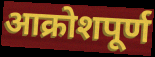
आक्रोशपूर्ण